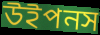
উইপনস